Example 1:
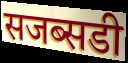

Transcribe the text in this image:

सजब्सडी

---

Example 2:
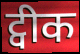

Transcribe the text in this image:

ट्वीक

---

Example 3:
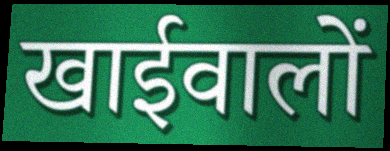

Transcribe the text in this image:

खाईवालों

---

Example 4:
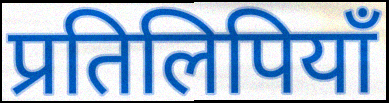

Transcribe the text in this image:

प्रतिलिपियाँ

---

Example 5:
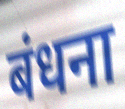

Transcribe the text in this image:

बंधना